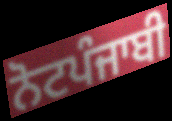
ਨੋਟਪੰਜਾਬੀ